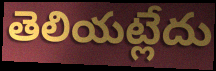
తెలియట్లేదు